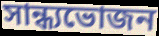
সান্ধ্যভোজন